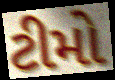
ટીમો